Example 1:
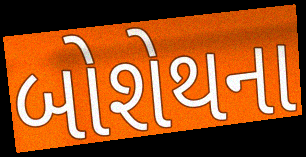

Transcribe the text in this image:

બોશેથના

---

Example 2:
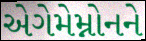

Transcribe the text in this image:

એગેમેમ્નોનને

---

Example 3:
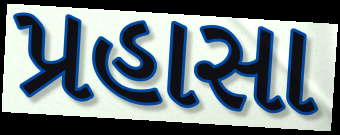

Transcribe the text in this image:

પ્રહાસા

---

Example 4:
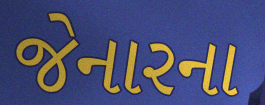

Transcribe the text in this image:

જેનારના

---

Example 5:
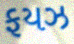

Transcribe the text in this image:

ફયઝ